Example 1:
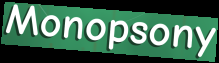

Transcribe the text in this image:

Monopsony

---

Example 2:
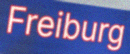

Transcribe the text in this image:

Freiburg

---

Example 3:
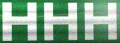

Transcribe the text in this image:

HHH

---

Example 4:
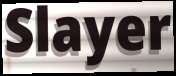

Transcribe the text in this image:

Slayer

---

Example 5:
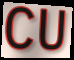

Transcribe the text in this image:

CU